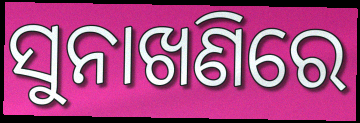
ସୁନାଖଣିରେ